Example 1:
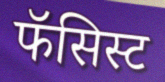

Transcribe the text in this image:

फॅसिस्ट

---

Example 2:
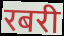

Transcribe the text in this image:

रबरी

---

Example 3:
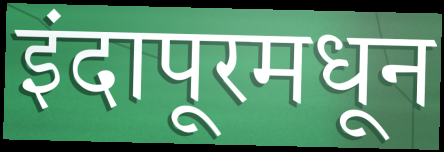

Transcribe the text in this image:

इंदापूरमधून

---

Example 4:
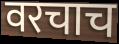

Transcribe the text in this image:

वरचाच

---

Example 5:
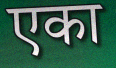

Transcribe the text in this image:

एका